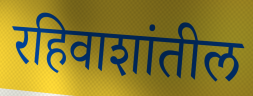
रहिवाशांतील